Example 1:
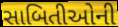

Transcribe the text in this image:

સાબિતીઓની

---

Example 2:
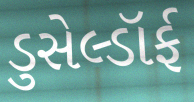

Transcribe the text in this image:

ડુસેલ્ડૉર્ફ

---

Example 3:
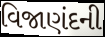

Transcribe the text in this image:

વિજાણંદની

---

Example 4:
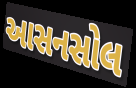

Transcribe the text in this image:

આસનસોલ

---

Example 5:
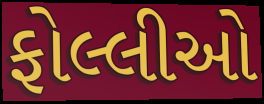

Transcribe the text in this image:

ફોલ્લીઓ